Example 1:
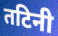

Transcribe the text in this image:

तटिनी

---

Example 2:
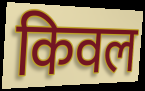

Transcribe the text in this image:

किवल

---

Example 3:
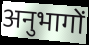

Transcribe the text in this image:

अनुभागों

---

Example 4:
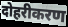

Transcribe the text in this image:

दोहरीकरण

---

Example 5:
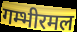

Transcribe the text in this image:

गम्भीरमल